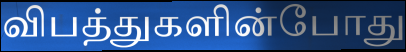
விபத்துகளின்போது